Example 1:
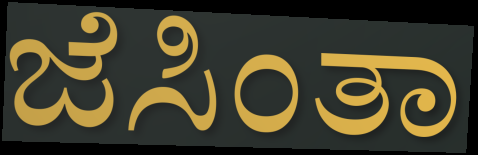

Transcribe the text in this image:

ಜೆಸಿಂತಾ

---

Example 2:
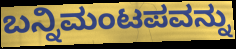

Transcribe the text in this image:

ಬನ್ನಿಮಂಟಪವನ್ನು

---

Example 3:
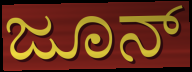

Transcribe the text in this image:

ಜೂನ್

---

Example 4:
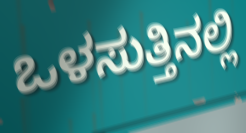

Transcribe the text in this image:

ಒಳಸುತ್ತಿನಲ್ಲಿ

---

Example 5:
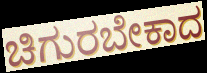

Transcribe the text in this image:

ಚಿಗುರಬೇಕಾದ